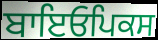
ਬਾਇਓਪਿਕਸ